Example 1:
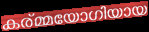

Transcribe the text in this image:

കര്മ്മയോഗിയായ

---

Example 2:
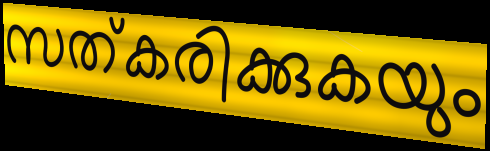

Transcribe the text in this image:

സത്കരിക്കുകയും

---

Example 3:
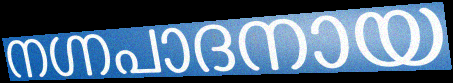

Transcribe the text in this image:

നഗ്നപാദനായ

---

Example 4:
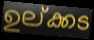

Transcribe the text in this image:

ഉല്ക്കട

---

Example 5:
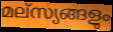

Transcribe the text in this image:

മല്സ്യങ്ങളും